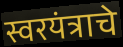
स्वरयंत्राचे